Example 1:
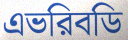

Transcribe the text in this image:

এভরিবডি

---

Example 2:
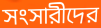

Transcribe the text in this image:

সংসারীদের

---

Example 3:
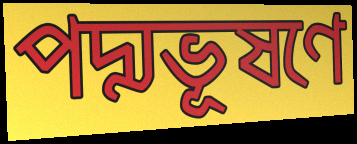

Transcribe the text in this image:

পদ্মভূষণে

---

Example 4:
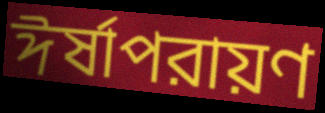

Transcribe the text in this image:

ঈর্ষাপরায়ণ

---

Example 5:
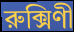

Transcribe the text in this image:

রুক্সিণী